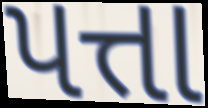
પત્તા